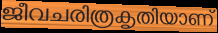
ജീവചരിത്രകൃതിയാണ്